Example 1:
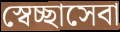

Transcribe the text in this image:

স্বেচ্ছাসেবা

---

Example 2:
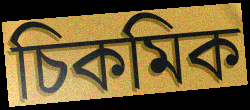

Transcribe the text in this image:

চিকমিক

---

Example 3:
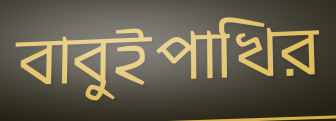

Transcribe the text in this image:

বাবুইপাখির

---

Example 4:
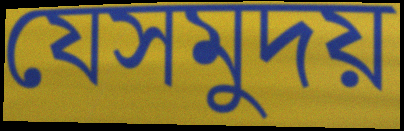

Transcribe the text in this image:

যেসমুদয়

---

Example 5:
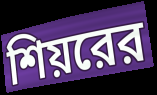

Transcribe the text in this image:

শিয়রের